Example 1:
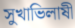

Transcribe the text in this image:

সুখাভিলাষী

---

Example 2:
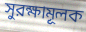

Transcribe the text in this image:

সুরক্ষামূলক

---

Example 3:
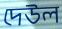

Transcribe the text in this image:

দেউল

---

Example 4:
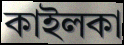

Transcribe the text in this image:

কাইলকা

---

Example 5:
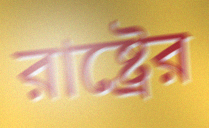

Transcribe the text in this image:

রাষ্ট্রের